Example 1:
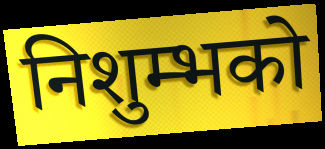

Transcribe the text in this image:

निशुम्भको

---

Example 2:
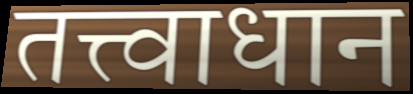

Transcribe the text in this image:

तत्त्वाधान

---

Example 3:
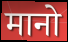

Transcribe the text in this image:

मानो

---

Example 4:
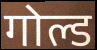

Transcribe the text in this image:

गोल्ड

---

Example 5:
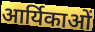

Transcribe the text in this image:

आर्यिकाओं